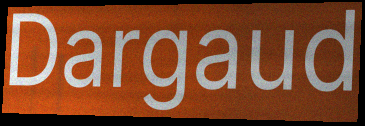
Dargaud